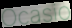
Ocasio